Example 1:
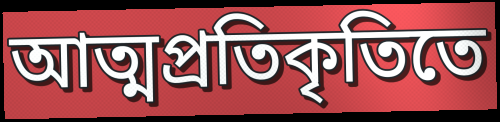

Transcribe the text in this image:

আত্মপ্রতিকৃতিতে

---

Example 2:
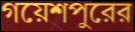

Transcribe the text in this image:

গয়েশপুরের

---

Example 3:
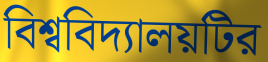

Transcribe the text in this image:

বিশ্ববিদ্যালয়টির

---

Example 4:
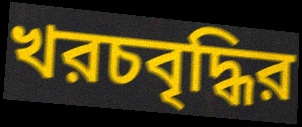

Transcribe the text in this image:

খরচবৃদ্ধির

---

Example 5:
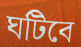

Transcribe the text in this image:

ঘটিবে